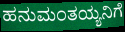
ಹನುಮಂತಯ್ಯನಿಗೆ